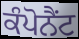
ਕੰਪੋਨੈਂਟ